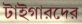
টাইগারদের